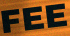
FEE